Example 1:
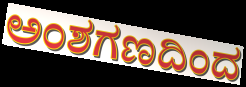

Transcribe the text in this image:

ಅಂಶಗಣದಿಂದ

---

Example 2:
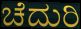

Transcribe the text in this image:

ಚೆದುರಿ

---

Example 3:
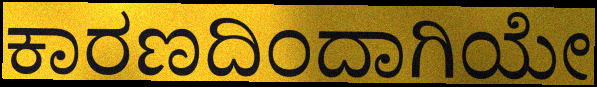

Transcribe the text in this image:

ಕಾರಣದಿಂದಾಗಿಯೇ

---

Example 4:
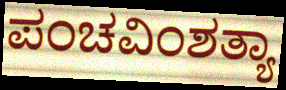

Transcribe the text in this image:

ಪಂಚವಿಂಶತ್ಯಾ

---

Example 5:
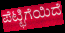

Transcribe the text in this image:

ಪೆಟ್ಟಿಗೆಯಿದೆ